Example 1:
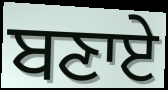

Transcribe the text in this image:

ਬਣਾਏ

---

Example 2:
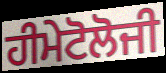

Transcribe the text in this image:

ਹੀਮੇਟੋਲੋਜੀ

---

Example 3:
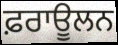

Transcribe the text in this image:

ਫ਼ਰਾਊਲਨ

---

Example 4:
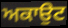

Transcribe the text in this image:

ਅਕਾਉਟ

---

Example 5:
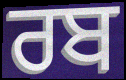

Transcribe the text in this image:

ਰਬ